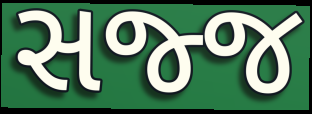
સજ્જ